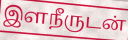
இளநீருடன்